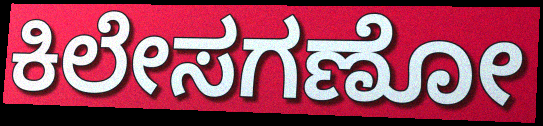
ಕಿಲೇಸಗಣೋ